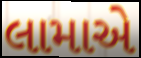
લામાએ